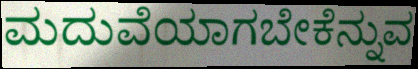
ಮದುವೆಯಾಗಬೇಕೆನ್ನುವ